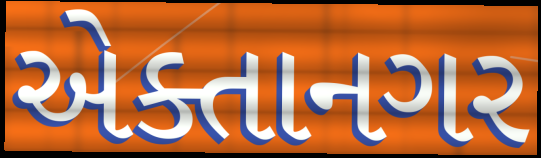
એક્તાનગર